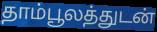
தாம்பூலத்துடன்